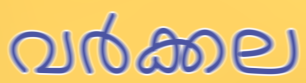
വർക്കല